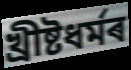
খ্ৰীষ্টধৰ্মৰ